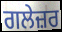
ਗਲੇਜ਼ਰ